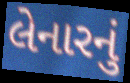
લેનારનું